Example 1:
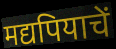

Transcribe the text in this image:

मद्यपियाचें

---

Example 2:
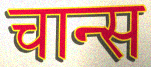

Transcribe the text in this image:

चान्स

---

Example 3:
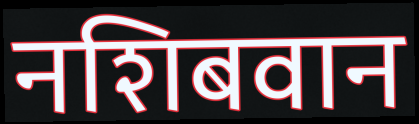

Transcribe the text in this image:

नशिबवान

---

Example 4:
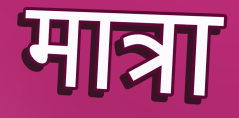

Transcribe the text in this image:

मात्रा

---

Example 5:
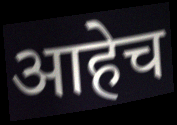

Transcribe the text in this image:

आहेच